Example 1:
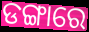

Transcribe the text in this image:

ଡଙ୍ଗାରେ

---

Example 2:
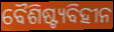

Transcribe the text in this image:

ବୈଶିଷ୍ଟ୍ୟବିହୀନ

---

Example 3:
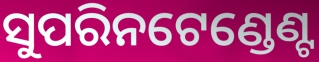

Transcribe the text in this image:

ସୁପରିନଟେଣ୍ଡେଣ୍ଟ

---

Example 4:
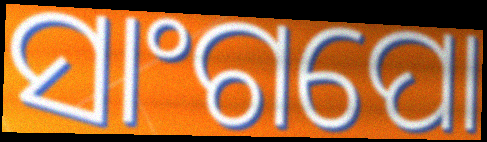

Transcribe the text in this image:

ସାଂଗପୋ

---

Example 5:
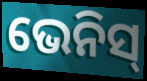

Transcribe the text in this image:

ଭେନିସ୍